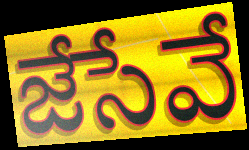
జేసేవే